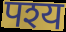
पश्य